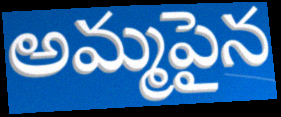
అమ్మపైన